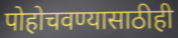
पोहोचवण्यासाठीही